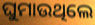
ଘୁମାଉଥିଲେ